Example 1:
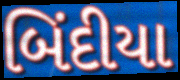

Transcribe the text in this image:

બિંદીયા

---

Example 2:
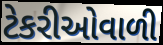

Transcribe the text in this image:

ટેકરીઓવાળી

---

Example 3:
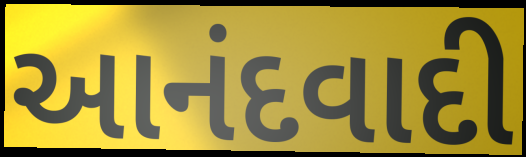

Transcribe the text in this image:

આનંદવાદી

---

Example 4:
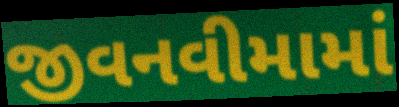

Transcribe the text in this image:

જીવનવીમામાં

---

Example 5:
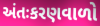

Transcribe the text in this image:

અંતઃકરણવાળો